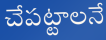
చేపట్టాలనే